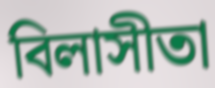
বিলাসীতা